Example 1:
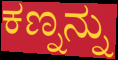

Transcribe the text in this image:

ಕಣ್ನನ್ನು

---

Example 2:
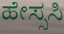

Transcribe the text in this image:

ಹೇಸ್ಸಸಿ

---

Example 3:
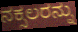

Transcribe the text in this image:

ನಕ್ಸಲರನ್ನು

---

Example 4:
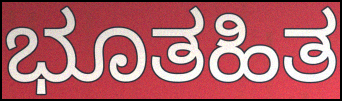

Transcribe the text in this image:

ಭೂತಹಿತ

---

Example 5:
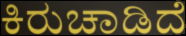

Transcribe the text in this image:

ಕಿರುಚಾಡಿದೆ